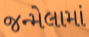
જન્મેલામાં